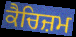
ਕੈਚਿਜ਼ਮ